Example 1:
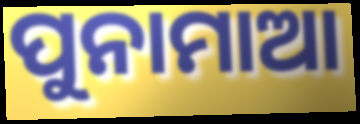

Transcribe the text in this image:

ପୁନାମାଆ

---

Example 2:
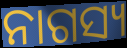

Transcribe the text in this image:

ନାଗସ୍ୟ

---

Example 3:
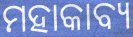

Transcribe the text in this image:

ମହାକାବ୍ୟ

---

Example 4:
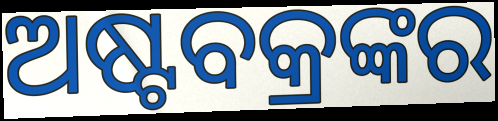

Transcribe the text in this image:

ଅଷ୍ଟବକ୍ରଙ୍କର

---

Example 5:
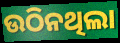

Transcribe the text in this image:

ଉଠିନଥିଲା